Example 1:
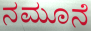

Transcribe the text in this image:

ನಮೂನೆ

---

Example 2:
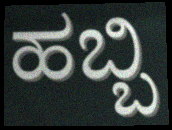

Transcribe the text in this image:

ಹಬ್ಬಿ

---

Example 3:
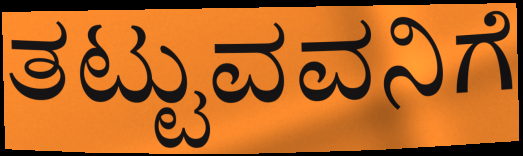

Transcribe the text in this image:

ತಟ್ಟುವವನಿಗೆ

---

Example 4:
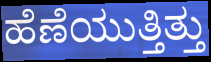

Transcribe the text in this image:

ಹೆಣೆಯುತ್ತಿತ್ತು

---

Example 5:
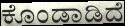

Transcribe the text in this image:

ಕೊಂಡಾಡಿದೆ